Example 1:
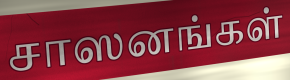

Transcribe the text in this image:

சாஸனங்கள்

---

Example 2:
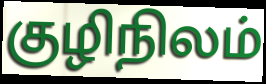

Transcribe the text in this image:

குழிநிலம்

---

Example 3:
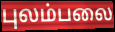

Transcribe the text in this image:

புலம்பலை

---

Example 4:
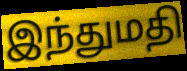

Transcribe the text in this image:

இந்துமதி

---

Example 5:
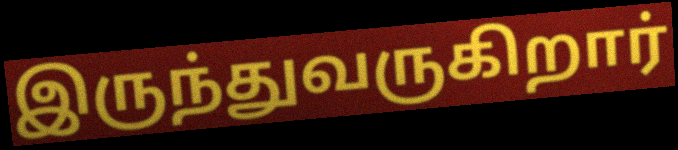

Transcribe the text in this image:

இருந்துவருகிறார்